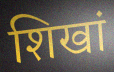
शिखां